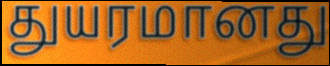
துயரமானது